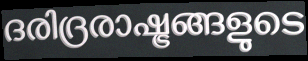
ദരിദ്രരാഷ്ട്രങ്ങളുടെ